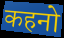
कहनो